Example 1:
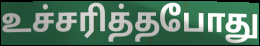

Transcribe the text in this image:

உச்சரித்தபோது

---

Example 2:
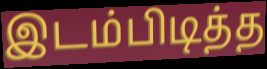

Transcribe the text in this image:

இடம்பிடித்த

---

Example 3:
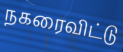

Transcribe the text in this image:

நகரைவிட்டு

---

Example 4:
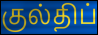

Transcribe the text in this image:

குல்திப்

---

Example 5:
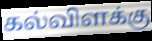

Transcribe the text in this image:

கல்விளக்கு